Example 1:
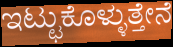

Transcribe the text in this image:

ಇಟ್ಟುಕೊಳ್ಳುತ್ತೇನೆ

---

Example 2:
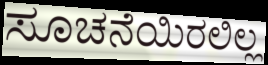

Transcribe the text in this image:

ಸೂಚನೆಯಿರಲಿಲ್ಲ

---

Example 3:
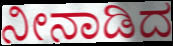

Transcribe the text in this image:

ನೀನಾಡಿದ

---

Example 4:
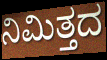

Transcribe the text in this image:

ನಿಮಿತ್ತದ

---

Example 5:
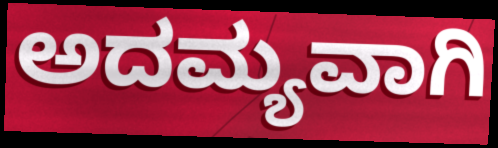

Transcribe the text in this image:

ಅದಮ್ಯವಾಗಿ